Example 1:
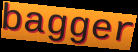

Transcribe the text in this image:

bagger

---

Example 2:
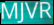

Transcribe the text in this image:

MJVR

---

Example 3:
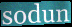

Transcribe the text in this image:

sodun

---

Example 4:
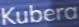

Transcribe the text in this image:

Kubera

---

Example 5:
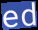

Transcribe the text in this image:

ed